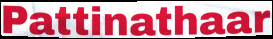
Pattinathaar